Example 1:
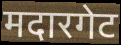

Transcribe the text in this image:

मदारगेट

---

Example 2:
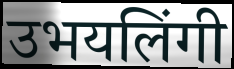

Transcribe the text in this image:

उभयलिंगी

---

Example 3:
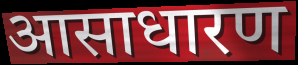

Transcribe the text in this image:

आसाधारण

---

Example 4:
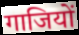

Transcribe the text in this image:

गाजियों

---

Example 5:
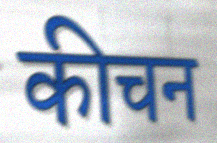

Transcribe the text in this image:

कीचन